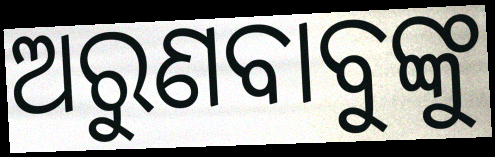
ଅରୁଣବାବୁଙ୍କୁ